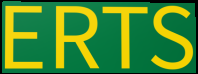
ERTS